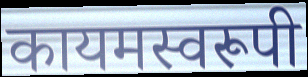
कायमस्वरूपी